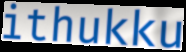
ithukku